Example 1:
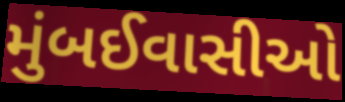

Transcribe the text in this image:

મુંબઈવાસીઓ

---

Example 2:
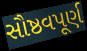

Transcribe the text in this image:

સૌષ્ઠવપૂર્ણ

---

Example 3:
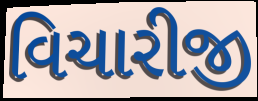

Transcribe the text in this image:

વિચારીજી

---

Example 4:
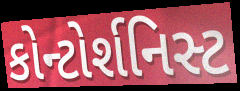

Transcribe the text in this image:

કોન્ટોર્શનિસ્ટ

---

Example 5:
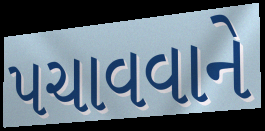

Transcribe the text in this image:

પચાવવાને